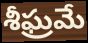
శీఘ్రమే